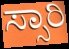
ಸ್ಸಾರಿ